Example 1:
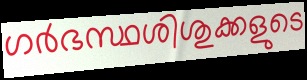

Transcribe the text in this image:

ഗർഭസ്ഥശിശുക്കളുടെ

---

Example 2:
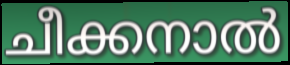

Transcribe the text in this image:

ചീക്കനാൽ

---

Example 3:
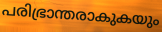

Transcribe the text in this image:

പരിഭ്രാന്തരാകുകയും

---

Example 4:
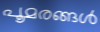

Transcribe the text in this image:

പൂമരങ്ങൾ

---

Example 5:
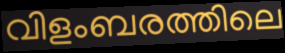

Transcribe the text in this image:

വിളംബരത്തിലെ